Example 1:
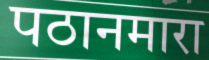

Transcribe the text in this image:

पठानमारा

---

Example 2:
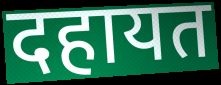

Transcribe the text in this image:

दहायत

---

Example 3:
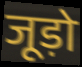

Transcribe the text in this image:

जूड़ो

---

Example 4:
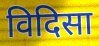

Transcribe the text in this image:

विदिसा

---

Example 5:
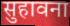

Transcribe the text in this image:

सुहावना